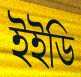
ইইডি